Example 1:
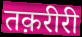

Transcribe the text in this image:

तक़रीरी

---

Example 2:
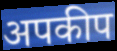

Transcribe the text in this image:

अपकीप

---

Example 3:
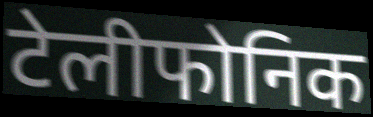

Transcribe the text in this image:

टेलीफोनिक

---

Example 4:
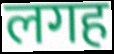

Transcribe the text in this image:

लगह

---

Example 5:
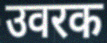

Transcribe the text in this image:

उवरक